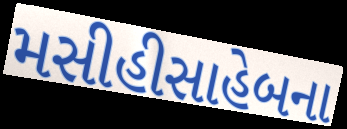
મસીહીસાહેબના